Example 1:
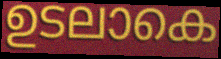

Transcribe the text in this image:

ഉടലാകെ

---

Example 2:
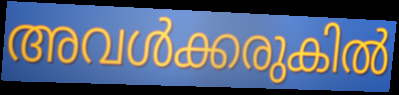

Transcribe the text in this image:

അവൾക്കരുകിൽ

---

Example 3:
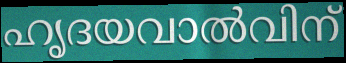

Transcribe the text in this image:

ഹൃദയവാൽവിന്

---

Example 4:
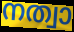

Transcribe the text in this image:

നത്വാ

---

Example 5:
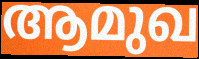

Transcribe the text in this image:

ആമുഖ